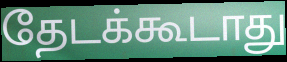
தேடக்கூடாது